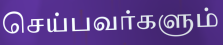
செய்பவர்களும்